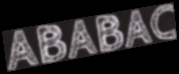
ABABAC